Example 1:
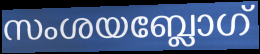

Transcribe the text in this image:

സംശയബ്ലോഗ്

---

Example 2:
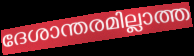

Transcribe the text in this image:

ദേശാന്തരമില്ലാത്ത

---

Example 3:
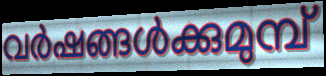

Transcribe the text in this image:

വർഷങ്ങൾക്കുമുമ്പ്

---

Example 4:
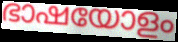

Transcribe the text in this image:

ഭാഷയോളം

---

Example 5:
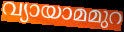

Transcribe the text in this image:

വ്യായാമമുറ